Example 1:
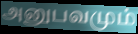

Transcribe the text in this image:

அனுபவமும்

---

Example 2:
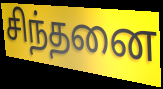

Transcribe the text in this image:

சிந்தனை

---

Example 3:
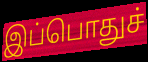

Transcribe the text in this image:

இப்பொதுச்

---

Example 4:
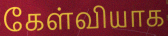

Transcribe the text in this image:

கேள்வியாக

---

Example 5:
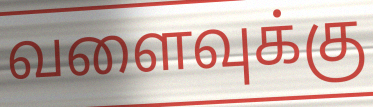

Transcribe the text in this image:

வளைவுக்கு